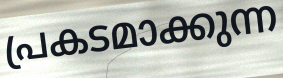
പ്രകടമാക്കുന്ന